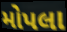
મોપલા